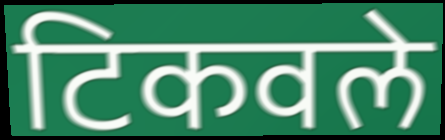
टिकवले